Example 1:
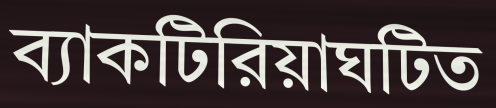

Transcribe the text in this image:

ব্যাকটিরিয়াঘটিত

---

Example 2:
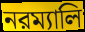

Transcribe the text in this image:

নরম্যালি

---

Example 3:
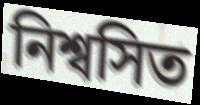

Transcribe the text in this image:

নিশ্বসিত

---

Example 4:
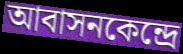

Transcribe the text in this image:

আবাসনকেন্দ্রে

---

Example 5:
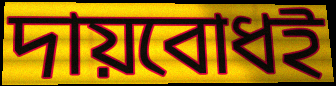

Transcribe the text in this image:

দায়বোধই